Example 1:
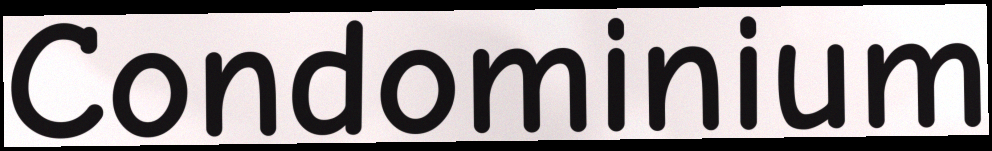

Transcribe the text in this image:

Condominium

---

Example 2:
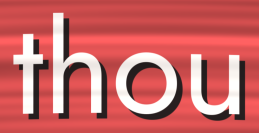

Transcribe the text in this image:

thou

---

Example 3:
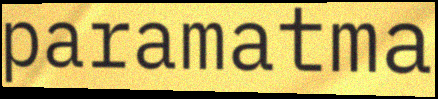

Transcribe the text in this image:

paramatma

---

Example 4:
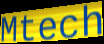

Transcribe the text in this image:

Mtech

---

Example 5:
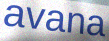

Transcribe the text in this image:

avana